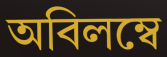
অবিলম্বে